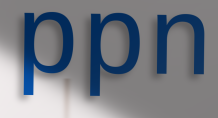
ppn